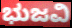
ಭುಜವಿ